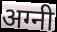
अग्नी